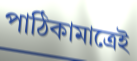
পাঠিকামাত্রেই